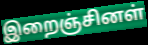
இறைஞ்சினள்